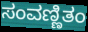
ಸಂವಣ್ಣಿತಂ